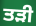
ਤੜੀ